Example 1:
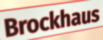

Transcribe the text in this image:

Brockhaus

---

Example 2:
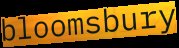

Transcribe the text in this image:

bloomsbury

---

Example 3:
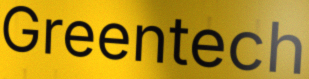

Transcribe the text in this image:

Greentech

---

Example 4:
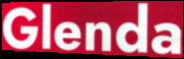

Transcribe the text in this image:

Glenda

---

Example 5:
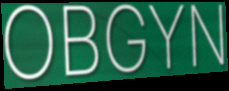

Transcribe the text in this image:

OBGYN